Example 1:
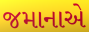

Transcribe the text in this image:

જમાનાએ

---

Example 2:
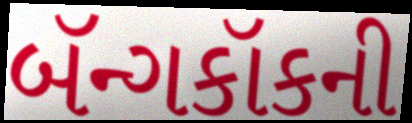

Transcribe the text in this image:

બૅન્ગકૉકની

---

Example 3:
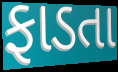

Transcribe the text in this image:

ફાડતા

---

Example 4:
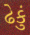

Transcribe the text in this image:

ઢેકું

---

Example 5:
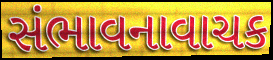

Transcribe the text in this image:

સંભાવનાવાચક